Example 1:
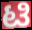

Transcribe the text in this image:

ಟಿ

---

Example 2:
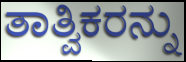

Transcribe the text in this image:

ತಾತ್ವಿಕರನ್ನು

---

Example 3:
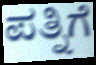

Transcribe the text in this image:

ಪತ್ನಿಗೆ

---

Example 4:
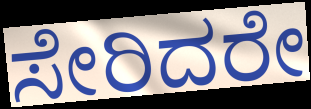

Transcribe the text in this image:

ಸೇರಿದರೇ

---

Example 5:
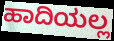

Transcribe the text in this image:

ಹಾದಿಯಲ್ಲ